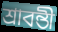
শ্রাবন্তী